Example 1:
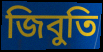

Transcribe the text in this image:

জিবুতি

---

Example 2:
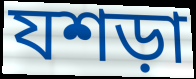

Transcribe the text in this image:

যশড়া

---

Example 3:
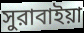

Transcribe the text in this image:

সুরাবাইয়া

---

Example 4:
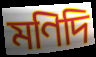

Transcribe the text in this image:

মণিদি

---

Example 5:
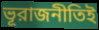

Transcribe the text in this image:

ভূরাজনীতিই